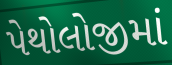
પેથોલોજીમાં